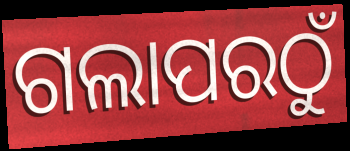
ଗଲାପରଠୁଁ